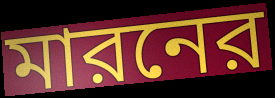
মারনের